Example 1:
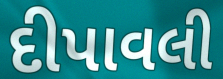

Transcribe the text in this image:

દીપાવલી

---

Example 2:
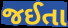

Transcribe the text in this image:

જઈતા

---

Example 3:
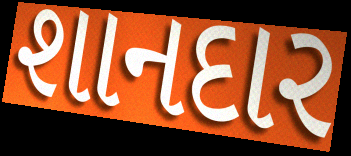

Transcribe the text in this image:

શાનદાર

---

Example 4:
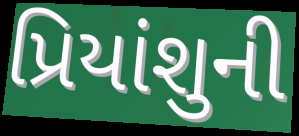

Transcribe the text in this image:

પ્રિયાંશુની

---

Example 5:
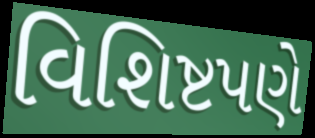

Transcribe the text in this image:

વિશિષ્ટપણે